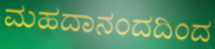
ಮಹದಾನಂದದಿಂದ